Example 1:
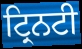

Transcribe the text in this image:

ਟ੍ਰਿਨਟੀ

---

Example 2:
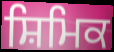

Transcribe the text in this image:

ਸ਼ਿਮਿਕ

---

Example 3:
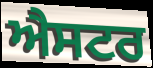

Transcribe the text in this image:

ਐਸਟਰ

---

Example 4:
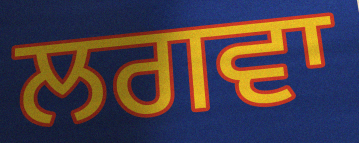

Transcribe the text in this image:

ਲਗਵਾ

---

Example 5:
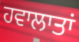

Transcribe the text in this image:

ਹਵਾਲਾਤਾਂ